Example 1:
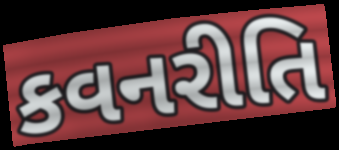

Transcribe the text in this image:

કવનરીતિ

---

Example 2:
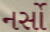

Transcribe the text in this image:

નર્સો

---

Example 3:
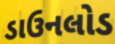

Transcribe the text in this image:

ડાઉનલોડ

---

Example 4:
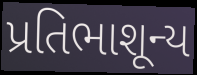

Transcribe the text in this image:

પ્રતિભાશૂન્ય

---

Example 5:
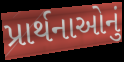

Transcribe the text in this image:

પ્રાર્થનાઓનું